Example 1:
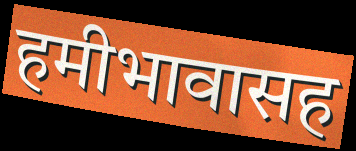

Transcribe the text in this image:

हमीभावासह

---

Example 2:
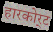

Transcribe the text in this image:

हारकोर्ट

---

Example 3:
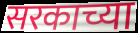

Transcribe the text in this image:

सरकाच्या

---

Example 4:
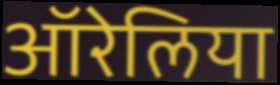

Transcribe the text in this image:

ऑरेलिया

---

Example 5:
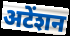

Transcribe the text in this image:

अटेंशन